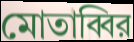
মোতাব্বির